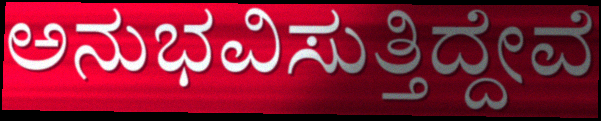
ಅನುಭವಿಸುತ್ತಿದ್ದೇವೆ